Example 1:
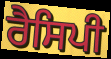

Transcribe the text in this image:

ਰੈਸਿਪੀ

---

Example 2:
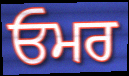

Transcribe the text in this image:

ਓਮਰ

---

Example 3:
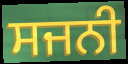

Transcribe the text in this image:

ਸਜਨੀ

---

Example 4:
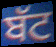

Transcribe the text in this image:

ਬੱਟ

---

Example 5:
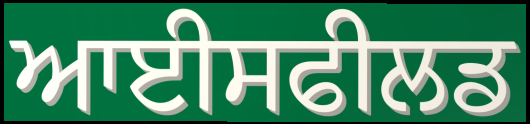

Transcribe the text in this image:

ਆਈਸਫੀਲਡ